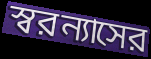
স্বরন্যাসের